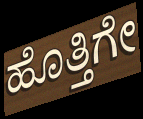
ಹೊತ್ತಿಗೇ